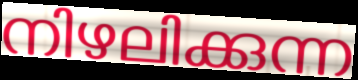
നിഴലിക്കുന്ന